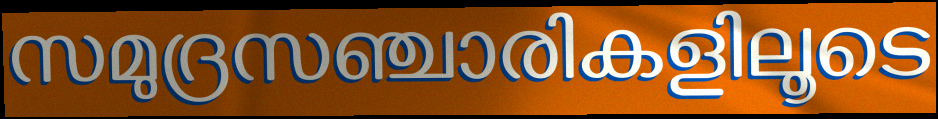
സമുദ്രസഞ്ചാരികളിലൂടെ